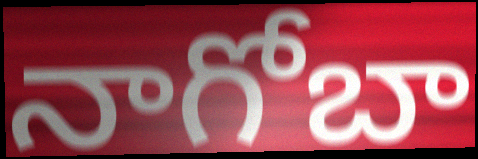
నాగోబా